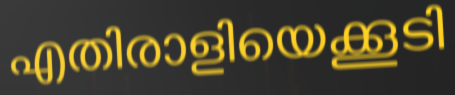
എതിരാളിയെക്കൂടി